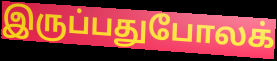
இருப்பதுபோலக்